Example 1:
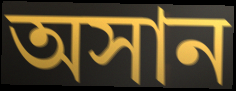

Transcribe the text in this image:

অসান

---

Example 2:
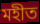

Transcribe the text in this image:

মহীত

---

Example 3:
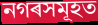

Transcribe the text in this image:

নগৰসমূহত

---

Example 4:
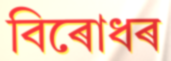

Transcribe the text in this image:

বিৰোধৰ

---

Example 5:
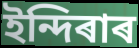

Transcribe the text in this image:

ইন্দিৰাৰ